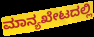
ಮಾನ್ಯಖೇಟದಲ್ಲಿ